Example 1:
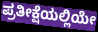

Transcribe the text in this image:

ಪ್ರತೀಕ್ಷೆಯಲ್ಲಿಯೇ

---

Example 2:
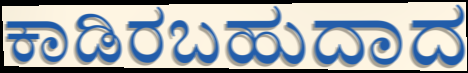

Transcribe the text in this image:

ಕಾಡಿರಬಹುದಾದ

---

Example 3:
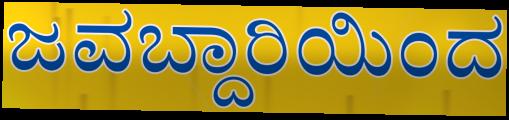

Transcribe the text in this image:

ಜವಬ್ದಾರಿಯಿಂದ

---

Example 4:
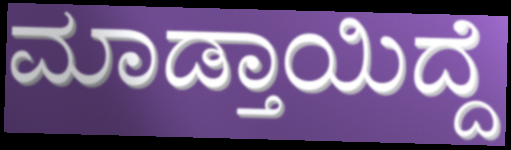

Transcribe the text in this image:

ಮಾಡ್ತಾಯಿದ್ದೆ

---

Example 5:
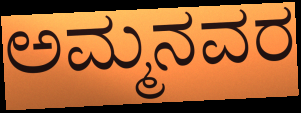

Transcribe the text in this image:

ಅಮ್ಮನವರ